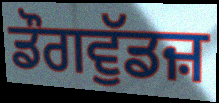
ਡੌਗਵੁੱਡਜ਼